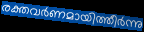
രക്തവർണമായിത്തീർന്നു